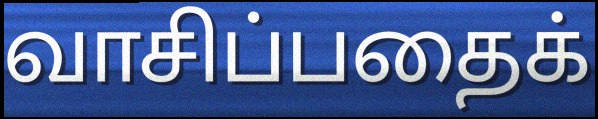
வாசிப்பதைக்